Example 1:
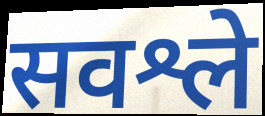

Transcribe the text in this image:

सवश्ले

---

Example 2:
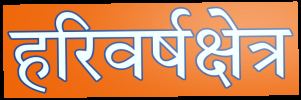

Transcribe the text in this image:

हरिवर्षक्षेत्र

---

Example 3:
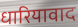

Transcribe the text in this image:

धारियावाद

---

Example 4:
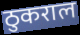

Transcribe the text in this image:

ठुकराल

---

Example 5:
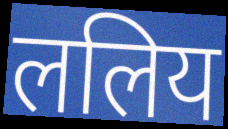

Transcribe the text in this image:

ललिय